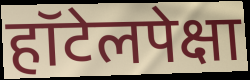
हॉटेलपेक्षा